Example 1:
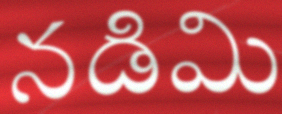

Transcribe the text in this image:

నడిమి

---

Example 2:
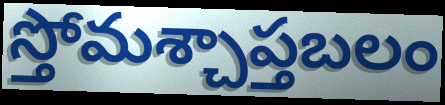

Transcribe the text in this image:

స్తోమశ్చాప్తబలం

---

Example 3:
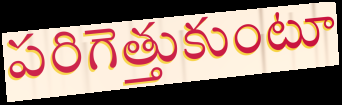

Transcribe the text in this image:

పరిగెత్తుకుంటూ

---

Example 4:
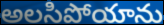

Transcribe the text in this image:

అలసిపోయాను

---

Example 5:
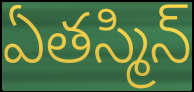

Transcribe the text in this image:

ఏతస్మిన్